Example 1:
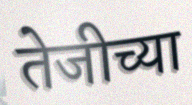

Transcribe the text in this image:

तेजीच्या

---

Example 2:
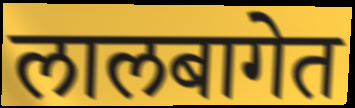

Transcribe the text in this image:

लालबागेत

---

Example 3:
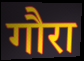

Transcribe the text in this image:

गौरा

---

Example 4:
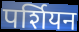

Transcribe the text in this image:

पर्शियन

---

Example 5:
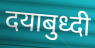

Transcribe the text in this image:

दयाबुध्दी